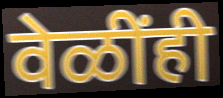
वेळींही